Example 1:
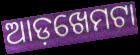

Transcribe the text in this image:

ଆଡ଼ଖେମଟା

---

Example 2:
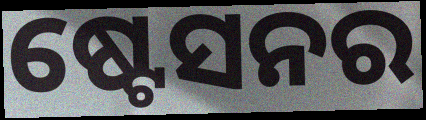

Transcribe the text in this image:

ଷ୍ଟେସନର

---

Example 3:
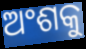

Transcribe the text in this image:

ଅଂଶକୁ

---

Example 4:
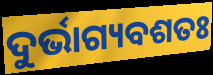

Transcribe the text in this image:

ଦୁର୍ଭାଗ୍ୟବଶତଃ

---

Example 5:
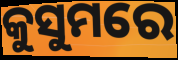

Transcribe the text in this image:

କୁସୁମରେ